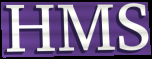
HMS